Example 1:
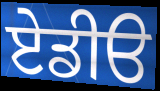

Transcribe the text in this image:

ਏਡੀੳ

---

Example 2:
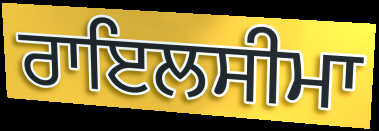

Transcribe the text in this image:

ਰਾਇਲਸੀਮਾ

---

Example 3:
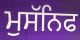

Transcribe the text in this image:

ਮੁਸੱਨਿਫ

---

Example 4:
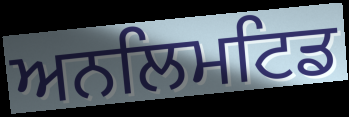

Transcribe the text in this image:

ਅਨਲਿਮਟਿਡ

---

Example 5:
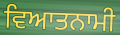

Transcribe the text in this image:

ਵਿਆਤਨਾਮੀ